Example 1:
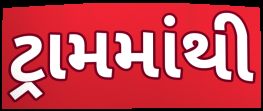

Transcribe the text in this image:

ટ્રામમાંથી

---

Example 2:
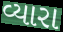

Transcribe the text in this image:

વ્યારા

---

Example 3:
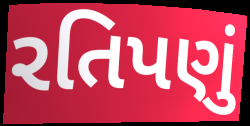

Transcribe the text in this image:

રતિપણું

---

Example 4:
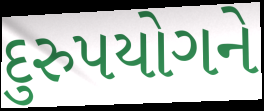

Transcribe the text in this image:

દુરુપયોગને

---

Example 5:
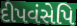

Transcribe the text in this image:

દીપવંસેપિ